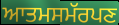
ਆਤਮਸਮੱਰਪਣ